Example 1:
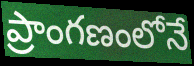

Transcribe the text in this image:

ప్రాంగణంలోనే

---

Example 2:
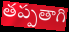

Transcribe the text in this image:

తప్పతాగి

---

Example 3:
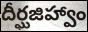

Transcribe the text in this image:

దీర్ఘజిహ్వాం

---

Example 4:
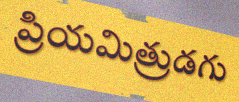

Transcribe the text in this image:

ప్రియమిత్రుడగు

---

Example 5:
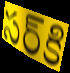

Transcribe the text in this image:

సర్‌కి